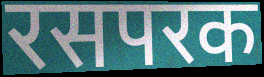
रसपरक